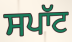
ਸਪਾੱਟ